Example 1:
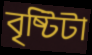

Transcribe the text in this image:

বৃষ্টিটা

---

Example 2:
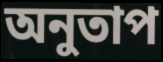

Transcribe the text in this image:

অনুতাপ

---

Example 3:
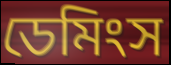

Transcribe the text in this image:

ডেমিংস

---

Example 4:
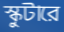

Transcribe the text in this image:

স্কুটারে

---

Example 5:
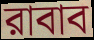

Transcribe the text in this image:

রাবাব